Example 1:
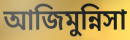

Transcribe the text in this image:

আজিমুন্নিসা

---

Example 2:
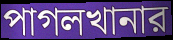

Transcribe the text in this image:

পাগলখানার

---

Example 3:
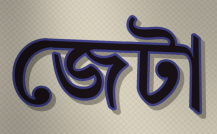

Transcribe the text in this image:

জেটা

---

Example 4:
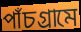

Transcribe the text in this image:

পাঁচগ্রামে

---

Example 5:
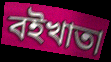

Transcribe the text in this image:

বইখাতা